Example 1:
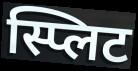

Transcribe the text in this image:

स्प्लिट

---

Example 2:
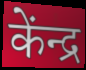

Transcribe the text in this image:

केंन्द्र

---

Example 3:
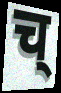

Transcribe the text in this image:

च्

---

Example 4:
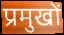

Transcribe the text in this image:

प्रमुखों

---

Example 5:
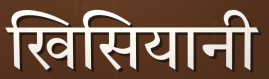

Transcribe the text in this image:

खिसियानी